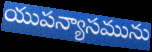
యుపన్యాసమును